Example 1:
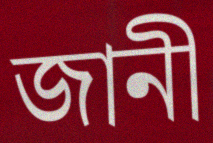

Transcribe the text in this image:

জানী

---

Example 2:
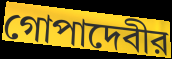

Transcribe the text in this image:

গোপাদেবীর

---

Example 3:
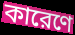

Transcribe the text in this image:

কারেণে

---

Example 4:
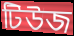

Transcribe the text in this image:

টিউজ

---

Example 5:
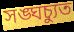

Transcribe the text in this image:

সঙ্ঘচ্যুত